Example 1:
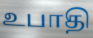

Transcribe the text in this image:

உபாதி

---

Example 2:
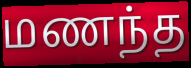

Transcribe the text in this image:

மணந்த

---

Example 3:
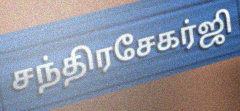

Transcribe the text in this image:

சந்திரசேகர்ஜி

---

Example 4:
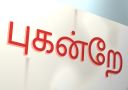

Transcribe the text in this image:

புகன்றே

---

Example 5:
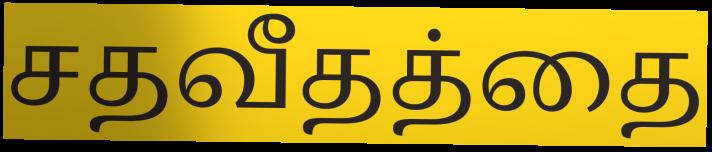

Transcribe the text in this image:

சதவீதத்தை